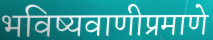
भविष्यवाणीप्रमाणे